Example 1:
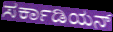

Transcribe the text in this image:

ಸರ್ಕಾಡಿಯನ್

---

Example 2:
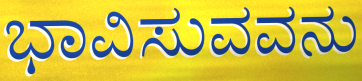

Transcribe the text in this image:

ಭಾವಿಸುವವನು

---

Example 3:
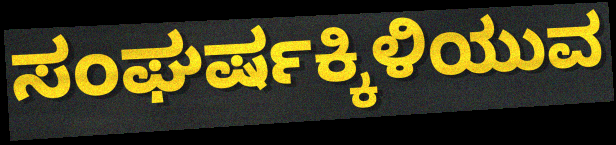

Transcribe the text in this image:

ಸಂಘರ್ಷಕ್ಕಿಳಿಯುವ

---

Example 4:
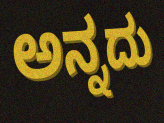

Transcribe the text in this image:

ಅನ್ನದು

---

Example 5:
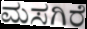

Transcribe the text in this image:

ಮಸಗಿರೆ